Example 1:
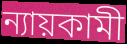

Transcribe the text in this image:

ন্যায়কামী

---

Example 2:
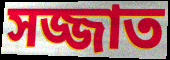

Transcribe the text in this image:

সজ্জাত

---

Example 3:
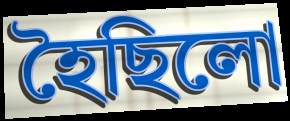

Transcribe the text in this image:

হৈছিলো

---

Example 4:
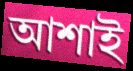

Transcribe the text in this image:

আশাই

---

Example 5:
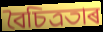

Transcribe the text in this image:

বৈচিত্ৰতাৰ